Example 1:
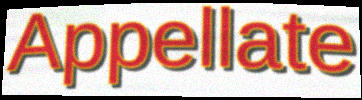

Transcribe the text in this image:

Appellate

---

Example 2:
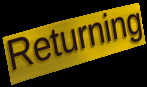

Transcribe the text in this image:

Returning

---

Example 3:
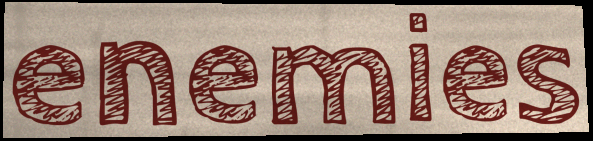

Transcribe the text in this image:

enemies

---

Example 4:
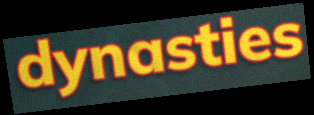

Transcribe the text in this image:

dynasties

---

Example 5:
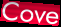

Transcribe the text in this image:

Cove